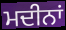
ਮਦੀਨਾਂ